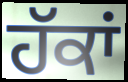
ਹੱਕਾਂ